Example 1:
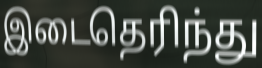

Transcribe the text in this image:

இடைதெரிந்து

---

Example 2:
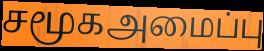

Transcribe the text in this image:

சமூகஅமைப்பு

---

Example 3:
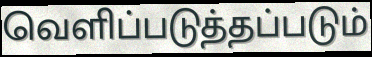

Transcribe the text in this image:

வெளிப்படுத்தப்படும்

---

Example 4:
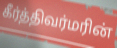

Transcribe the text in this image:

கீர்த்திவர்மரின்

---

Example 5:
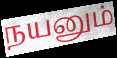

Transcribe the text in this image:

நயனும்